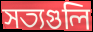
সত্যগুলি